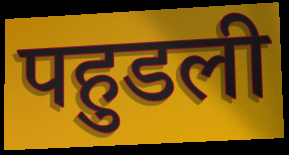
पहुडली